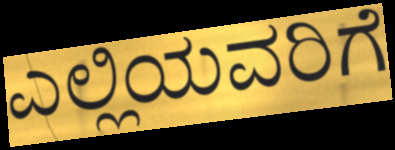
ಎಲ್ಲಿಯವರಿಗೆ